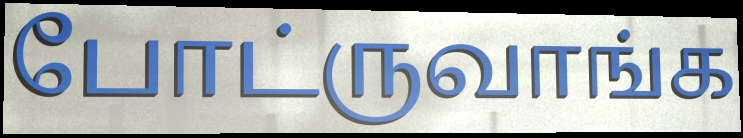
போட்ருவாங்க